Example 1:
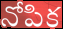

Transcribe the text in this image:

నోపిక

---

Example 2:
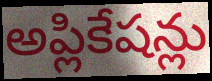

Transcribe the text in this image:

అప్లికేషన్లు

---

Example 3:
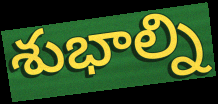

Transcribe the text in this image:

శుభాల్ని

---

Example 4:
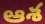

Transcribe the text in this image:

ఆశ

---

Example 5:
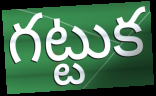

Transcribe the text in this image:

గట్టుక